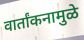
वार्तांकनामुळे